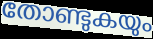
തോണ്ടുകയും